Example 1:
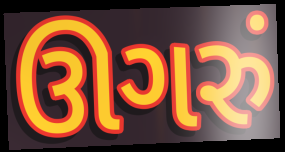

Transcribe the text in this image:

ઊગરું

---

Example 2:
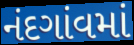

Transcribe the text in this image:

નંદગાંવમાં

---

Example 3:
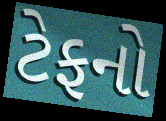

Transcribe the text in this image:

ટેફનો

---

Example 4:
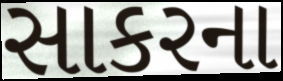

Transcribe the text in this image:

સાકરના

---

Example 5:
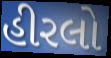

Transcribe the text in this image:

હીરલો